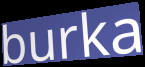
burka